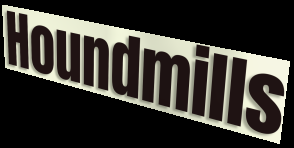
Houndmills